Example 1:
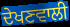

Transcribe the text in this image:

ਦੇਖਣਵਾਲੀ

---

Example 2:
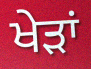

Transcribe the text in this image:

ਖੇੜਾਂ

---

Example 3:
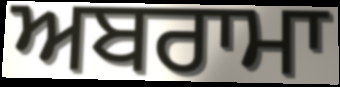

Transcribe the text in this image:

ਅਬਰਾਮਾ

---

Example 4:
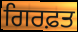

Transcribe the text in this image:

ਗਿਰਫ਼ਤ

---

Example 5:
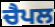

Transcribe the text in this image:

ਚੈਪਲ